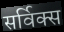
सर्विक्स